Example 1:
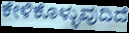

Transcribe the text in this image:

ಕೇಳಿಕೊಳ್ಳುವುದಿದೆ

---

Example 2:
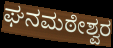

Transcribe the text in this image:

ಘನಮಠೇಶ್ವರ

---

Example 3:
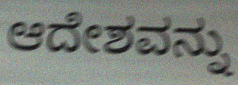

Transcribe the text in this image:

ಆದೇಶವನ್ನು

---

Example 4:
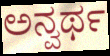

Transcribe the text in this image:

ಅನ್ವರ್ಥ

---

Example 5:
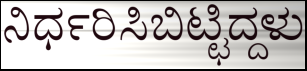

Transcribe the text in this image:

ನಿರ್ಧರಿಸಿಬಿಟ್ಟಿದ್ದಳು